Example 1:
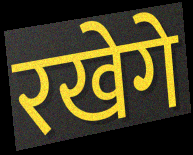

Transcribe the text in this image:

रखेगे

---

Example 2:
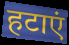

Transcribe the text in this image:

हटाएं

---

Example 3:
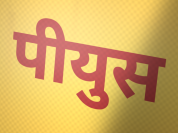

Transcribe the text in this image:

पीयुस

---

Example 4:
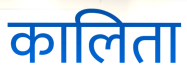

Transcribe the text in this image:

कालिता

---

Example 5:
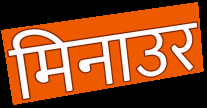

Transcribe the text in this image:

मिनाउर